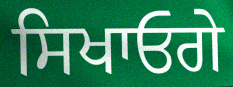
ਸਿਖਾਓਗੇ